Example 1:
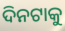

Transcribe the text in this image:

ଦିନଟାକୁ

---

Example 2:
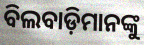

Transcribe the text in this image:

ବିଲବାଡ଼ିମାନଙ୍କୁ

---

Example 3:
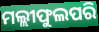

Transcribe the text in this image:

ମଲ୍ଲୀଫୁଲପରି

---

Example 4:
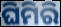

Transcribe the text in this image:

ଘିମିରି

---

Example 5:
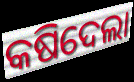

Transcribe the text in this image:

କଷିଦେଲା